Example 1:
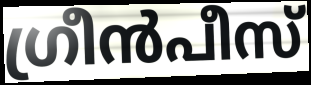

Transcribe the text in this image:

ഗ്രീൻപീസ്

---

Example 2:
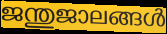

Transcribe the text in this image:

ജന്തുജാലങ്ങൾ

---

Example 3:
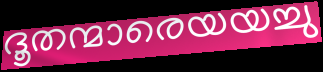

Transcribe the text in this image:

ദൂതന്മാരെയയച്ചു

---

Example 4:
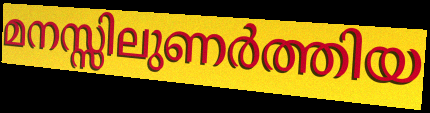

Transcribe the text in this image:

മനസ്സിലുണർത്തിയ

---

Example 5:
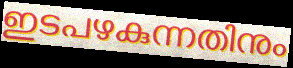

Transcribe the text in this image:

ഇടപഴകുന്നതിനും